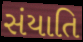
સંયાતિ